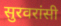
सुरवरांसी